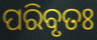
ପରିବୃତଃ